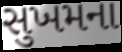
સુખમના